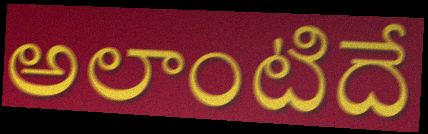
అలాంటిదే